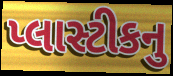
પ્લાસ્ટીકનુ